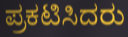
ಪ್ರಕಟಿಸಿದರು